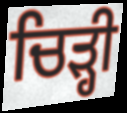
ਚਿੜ੍ਹੀ